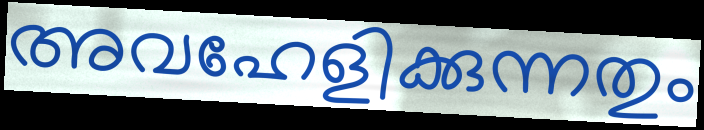
അവഹേളിക്കുന്നതും